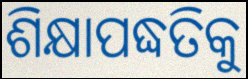
ଶିକ୍ଷାପଦ୍ଧତିକୁ